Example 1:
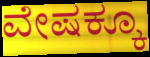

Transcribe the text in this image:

ವೇಷಕ್ಕೂ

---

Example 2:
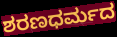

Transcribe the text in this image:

ಶರಣಧರ್ಮದ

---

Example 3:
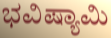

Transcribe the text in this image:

ಭವಿಷ್ಯಾಮಿ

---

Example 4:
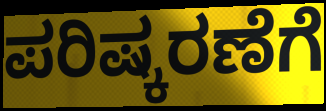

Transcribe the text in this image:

ಪರಿಷ್ಕರಣೆಗೆ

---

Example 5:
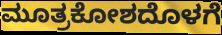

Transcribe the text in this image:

ಮೂತ್ರಕೋಶದೊಳಗೆ